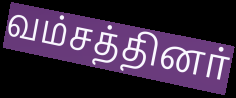
வம்சத்தினர்